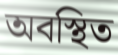
অবস্থিত